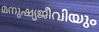
മനുഷ്യജീവിയും